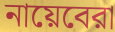
নায়েবেরা